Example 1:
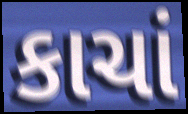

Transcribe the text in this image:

કાચાં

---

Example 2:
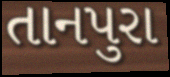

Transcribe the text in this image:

તાનપુરા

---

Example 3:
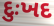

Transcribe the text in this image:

દુઃખદ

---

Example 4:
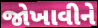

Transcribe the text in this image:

જોખાવીને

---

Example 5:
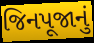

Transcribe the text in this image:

જિનપૂજાનું